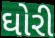
ઘોરી